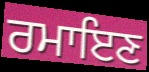
ਰਮਾਇਣ